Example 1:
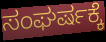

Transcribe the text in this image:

ಸಂಘರ್ಷಕ್ಕೆ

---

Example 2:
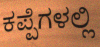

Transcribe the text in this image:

ಕಪ್ಪೆಗಳಲ್ಲಿ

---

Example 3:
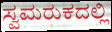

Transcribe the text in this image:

ಸ್ವಮರುಕದಲ್ಲಿ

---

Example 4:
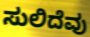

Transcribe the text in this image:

ಸುಲಿದೆವು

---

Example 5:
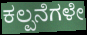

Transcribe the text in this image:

ಕಲ್ಪನೆಗಳೇ